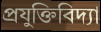
প্রযুক্তিবিদ্যা